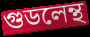
গুডলেন্থ